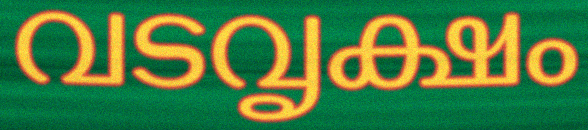
വടവൃക്ഷം